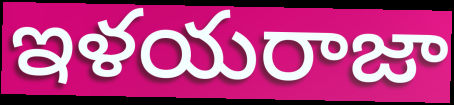
ఇళయరాజా